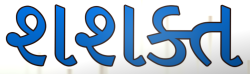
શશક્ત